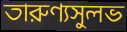
তারুণ্যসুলভ